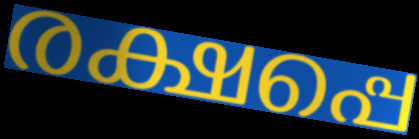
രക്ഷപ്പെ